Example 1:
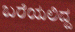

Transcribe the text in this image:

ಬರೆಯಲಿದ್ದ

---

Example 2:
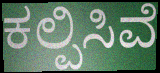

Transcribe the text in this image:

ಕಲ್ಪಿಸಿವೆ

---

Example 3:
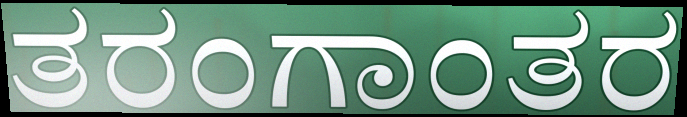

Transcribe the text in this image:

ತರಂಗಾಂತರ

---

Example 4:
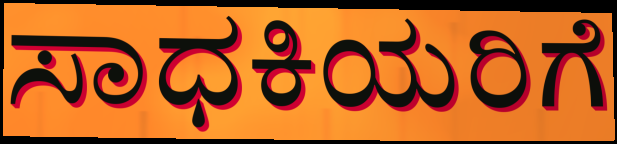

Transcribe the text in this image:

ಸಾಧಕಿಯರಿಗೆ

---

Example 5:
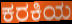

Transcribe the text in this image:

ಕರಕಿಯ